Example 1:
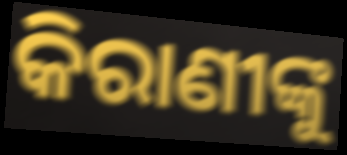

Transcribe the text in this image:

କିରାଣୀଙ୍କୁ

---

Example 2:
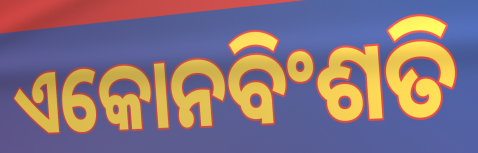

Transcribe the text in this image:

ଏକୋନବିଂଶତି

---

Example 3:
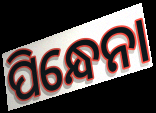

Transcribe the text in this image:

ପିନ୍ଧେନା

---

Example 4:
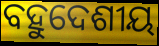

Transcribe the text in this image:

ବହୁଦେଶୀୟ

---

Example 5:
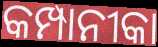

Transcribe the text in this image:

କମ୍ପାନୀକା